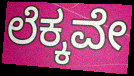
ಲೆಕ್ಕವೇ